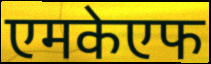
एमकेएफ